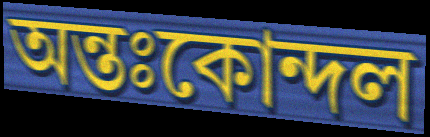
অন্তঃকোন্দল